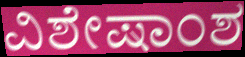
ವಿಶೇಷಾಂಶ